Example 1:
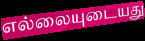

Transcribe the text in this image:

எல்லையுடையது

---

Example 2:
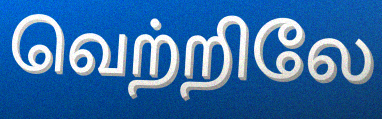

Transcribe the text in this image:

வெற்றிலே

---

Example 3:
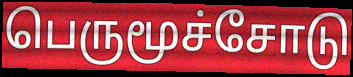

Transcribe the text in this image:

பெருமூச்சோடு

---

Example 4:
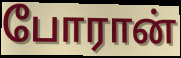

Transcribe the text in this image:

போரான்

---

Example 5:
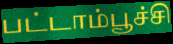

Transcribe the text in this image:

பட்டாம்பூச்சி